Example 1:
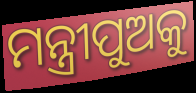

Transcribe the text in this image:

ମନ୍ତ୍ରୀପୁଅକୁ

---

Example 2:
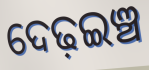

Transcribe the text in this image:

ଦେଢ଼ଇଞ୍ଚ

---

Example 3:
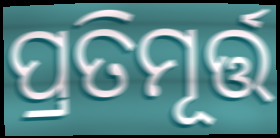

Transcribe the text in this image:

ପ୍ରତିମୂର୍ତ୍ତ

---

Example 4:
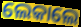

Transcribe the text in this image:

ଲେକାଲେ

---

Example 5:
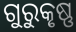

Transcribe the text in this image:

ଗୁରୁକୃଷ୍ଣ